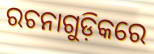
ରଚନାଗୁଡ଼ିକରେ